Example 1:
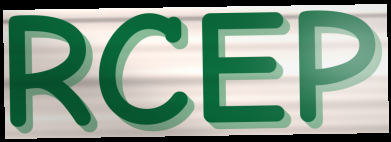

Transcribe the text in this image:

RCEP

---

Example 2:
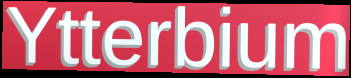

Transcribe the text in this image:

Ytterbium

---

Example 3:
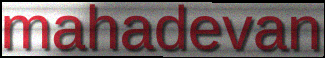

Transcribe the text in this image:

mahadevan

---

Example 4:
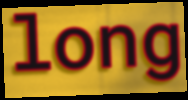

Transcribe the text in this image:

long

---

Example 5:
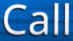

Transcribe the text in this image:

Call